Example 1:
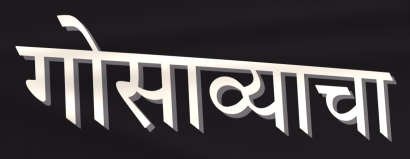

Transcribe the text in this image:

गोसाव्याचा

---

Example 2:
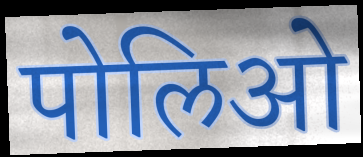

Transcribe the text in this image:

पोलिओ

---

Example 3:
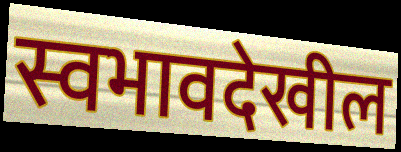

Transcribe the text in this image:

स्वभावदेखील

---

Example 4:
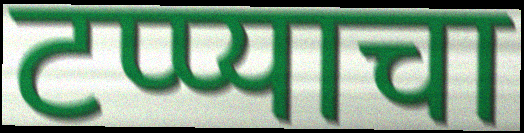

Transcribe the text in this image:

टप्प्याचा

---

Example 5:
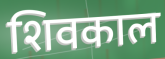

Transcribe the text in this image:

शिवकाल